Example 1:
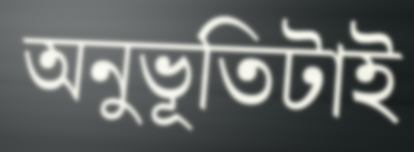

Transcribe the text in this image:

অনুভূতিটাই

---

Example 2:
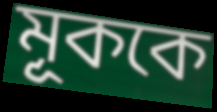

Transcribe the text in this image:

মূককে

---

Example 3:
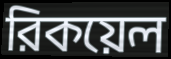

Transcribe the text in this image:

রিকয়েল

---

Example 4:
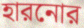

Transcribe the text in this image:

হারনোর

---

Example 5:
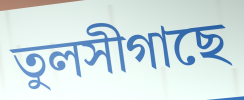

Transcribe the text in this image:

তুলসীগাছে